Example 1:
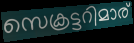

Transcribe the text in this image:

സെക്രട്ടറിമാര്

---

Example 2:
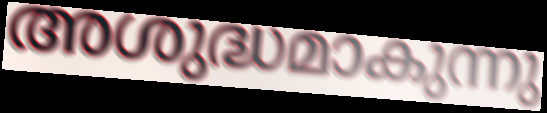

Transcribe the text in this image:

അശുദ്ധമാകുന്നു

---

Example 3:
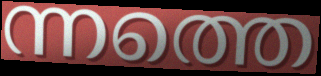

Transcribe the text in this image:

ന്നത്തെ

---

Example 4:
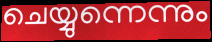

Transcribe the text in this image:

ചെയ്യുന്നെന്നും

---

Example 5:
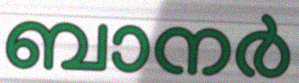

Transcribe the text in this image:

ബാനർ